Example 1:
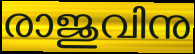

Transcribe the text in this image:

രാജുവിനു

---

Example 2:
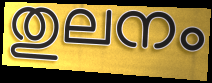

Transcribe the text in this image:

തുലനം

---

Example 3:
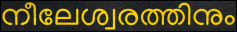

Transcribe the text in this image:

നീലേശ്വരത്തിനും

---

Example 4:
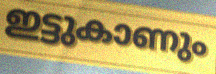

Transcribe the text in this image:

ഇട്ടുകാണും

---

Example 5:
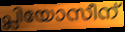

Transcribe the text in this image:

പ്ലിയോസീന്